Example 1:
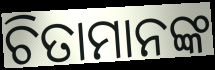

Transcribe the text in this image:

ଚିତାମାନଙ୍କ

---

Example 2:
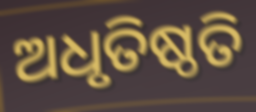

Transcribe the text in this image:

ଅଧୃତିଷ୍ଠତି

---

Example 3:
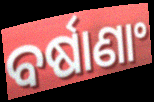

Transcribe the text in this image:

ବର୍ଷାଣାଂ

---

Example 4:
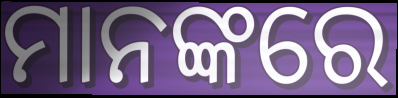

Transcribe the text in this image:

ମାନଙ୍କରେ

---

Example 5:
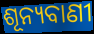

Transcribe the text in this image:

ଶୂନ୍ୟବାଣୀ